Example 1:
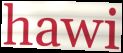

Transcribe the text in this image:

hawi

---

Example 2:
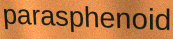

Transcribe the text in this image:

parasphenoid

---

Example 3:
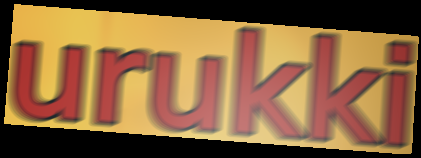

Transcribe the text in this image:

urukki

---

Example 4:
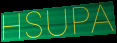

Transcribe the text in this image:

HSUPA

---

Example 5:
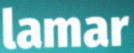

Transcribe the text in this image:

lamar